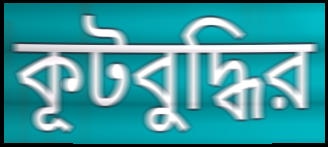
কূটবুদ্ধির